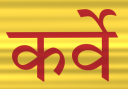
कर्वे